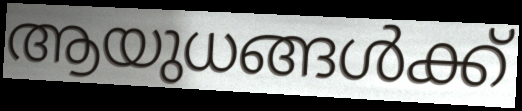
ആയുധങ്ങൾക്ക്